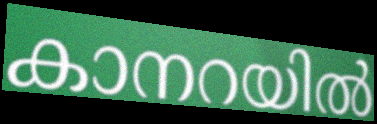
കാനറയിൽ